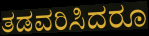
ತಡವರಿಸಿದರೂ